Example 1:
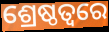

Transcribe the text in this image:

ଶ୍ରେଷ୍ଠତ୍ୱରେ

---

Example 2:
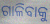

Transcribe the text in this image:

ଗାଳିବାକୁ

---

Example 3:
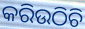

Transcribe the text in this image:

କରିଉଠିଚି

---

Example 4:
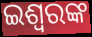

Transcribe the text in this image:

ଇଶ୍ୱରଙ୍କ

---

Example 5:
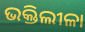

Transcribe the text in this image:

ଭକ୍ତିଲୀଳା